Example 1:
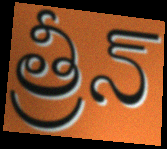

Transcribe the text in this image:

త్రీన్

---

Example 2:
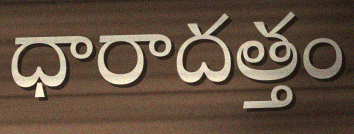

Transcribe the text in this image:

ధారాదత్తం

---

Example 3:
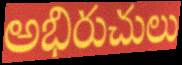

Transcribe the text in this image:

అభిరుచులు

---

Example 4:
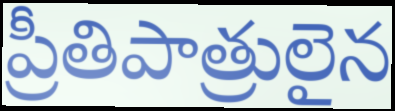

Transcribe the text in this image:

ప్రీతిపాత్రులైన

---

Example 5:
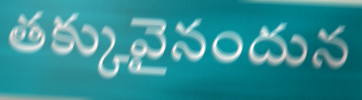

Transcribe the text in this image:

తక్కువైనందున